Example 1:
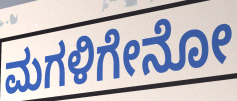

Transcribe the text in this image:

ಮಗಳಿಗೇನೋ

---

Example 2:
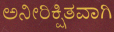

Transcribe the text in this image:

ಅನೀರಿಕ್ಷಿತವಾಗಿ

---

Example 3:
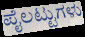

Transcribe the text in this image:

ಪೈಲಟ್ಟುಗಳು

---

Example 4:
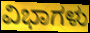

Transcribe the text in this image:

ವಿಭಾಗಳು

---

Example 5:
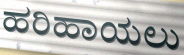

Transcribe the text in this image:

ಹರಿಹಾಯಲು